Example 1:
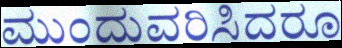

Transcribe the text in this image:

ಮುಂದುವರಿಸಿದರೂ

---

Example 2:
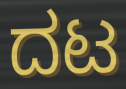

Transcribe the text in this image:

ದಟ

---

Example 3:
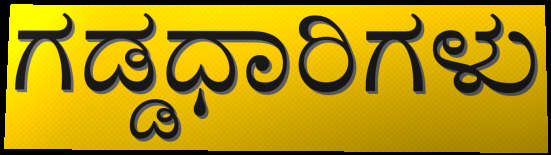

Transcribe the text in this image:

ಗಡ್ಡಧಾರಿಗಳು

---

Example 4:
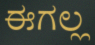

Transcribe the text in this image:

ಈಗಲ್ಲ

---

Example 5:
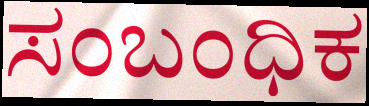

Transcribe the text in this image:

ಸಂಬಂಧಿಕ